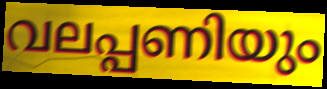
വലപ്പണിയും